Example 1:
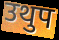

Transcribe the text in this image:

उथुप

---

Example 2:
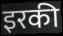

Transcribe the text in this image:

इरकी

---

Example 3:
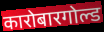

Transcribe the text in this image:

कारोबारगोल्ड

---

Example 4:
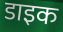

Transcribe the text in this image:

डाइक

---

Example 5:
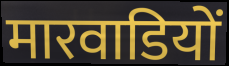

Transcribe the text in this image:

मारवाडियों